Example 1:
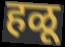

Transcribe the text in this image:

हळू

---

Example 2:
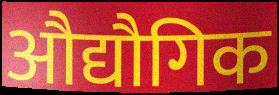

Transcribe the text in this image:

औद्यौगिक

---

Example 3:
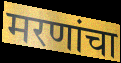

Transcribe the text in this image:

मरणांचा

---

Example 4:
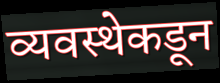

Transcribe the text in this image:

व्यवस्थेकडून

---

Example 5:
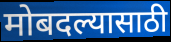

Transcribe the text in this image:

मोबदल्यासाठी